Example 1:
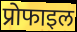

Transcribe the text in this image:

प्रोफाइल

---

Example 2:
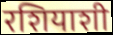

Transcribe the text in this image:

रशियाशी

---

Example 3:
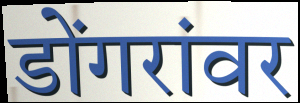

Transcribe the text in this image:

डोंगरांवर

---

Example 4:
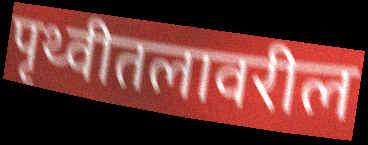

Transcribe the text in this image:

पृथ्वीतलावरील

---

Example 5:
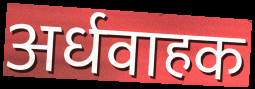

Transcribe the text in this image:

अर्धवाहक